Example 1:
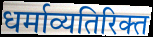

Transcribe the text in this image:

धर्माव्यतिरिक्त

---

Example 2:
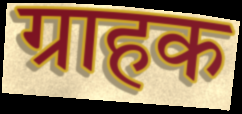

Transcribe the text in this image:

ग्राहक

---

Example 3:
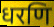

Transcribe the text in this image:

धरणि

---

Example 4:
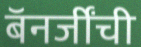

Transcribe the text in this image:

बॅनर्जींची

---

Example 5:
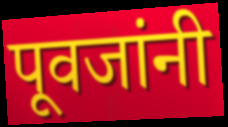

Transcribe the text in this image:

पूवजांनी